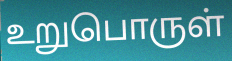
உறுபொருள்